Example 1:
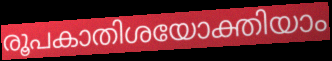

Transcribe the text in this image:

രൂപകാതിശയോക്തിയാം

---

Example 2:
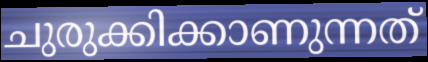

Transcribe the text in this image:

ചുരുക്കിക്കാണുന്നത്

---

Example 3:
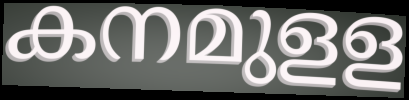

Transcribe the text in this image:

കനമുളള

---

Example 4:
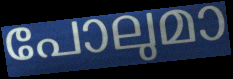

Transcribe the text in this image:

പോലുമാ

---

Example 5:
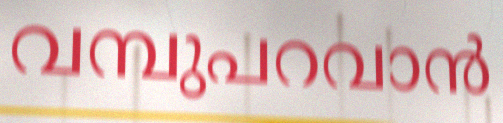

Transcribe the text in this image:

വമ്പുപറവാൻ